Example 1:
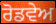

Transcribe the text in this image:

ਰੋਡਵੇਅ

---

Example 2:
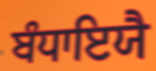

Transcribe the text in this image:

ਬੰਧਾਇਯੈ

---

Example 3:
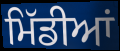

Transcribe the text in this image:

ਮਿੱਡੀਆਂ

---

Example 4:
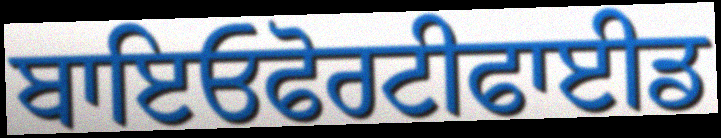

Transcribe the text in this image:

ਬਾਇਓਫੋਰਟੀਫਾਈਡ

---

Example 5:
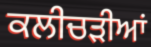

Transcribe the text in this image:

ਕਲੀਚੜੀਆਂ